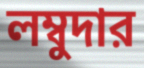
লম্বুদার